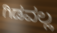
ಗಿಡವಲ್ಲ